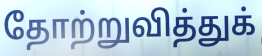
தோற்றுவித்துக்